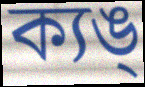
ক্যঙ্